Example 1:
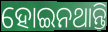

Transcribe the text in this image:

ହୋଇନଥାନ୍ତି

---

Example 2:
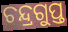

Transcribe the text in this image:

ଚନ୍ଦ୍ରଗୁପ୍ତ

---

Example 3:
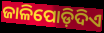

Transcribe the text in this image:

ଜାଳିପୋଡ଼ିଦିଏ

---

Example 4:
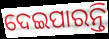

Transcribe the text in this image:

ଦେଇପାରନ୍ତି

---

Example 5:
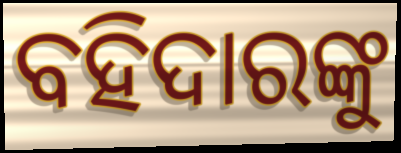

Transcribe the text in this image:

ବହିଦାରଙ୍କୁ